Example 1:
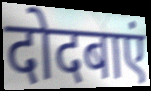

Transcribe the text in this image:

दोदबाएं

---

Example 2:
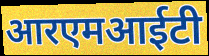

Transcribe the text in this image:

आरएमआईटी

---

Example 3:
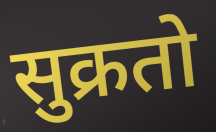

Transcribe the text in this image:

सुक्रतो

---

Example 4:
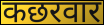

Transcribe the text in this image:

कछरवार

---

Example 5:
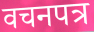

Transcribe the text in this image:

वचनपत्र